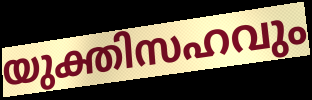
യുക്തിസഹവും